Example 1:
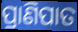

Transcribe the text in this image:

ପ୍ରାଣିପାତ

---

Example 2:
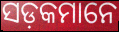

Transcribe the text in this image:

ସଡ଼କମାନେ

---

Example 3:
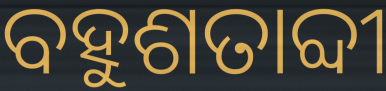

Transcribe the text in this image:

ବହୁଶତାବ୍ଦୀ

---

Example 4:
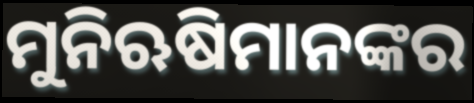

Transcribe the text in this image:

ମୁନିଋଷିମାନଙ୍କର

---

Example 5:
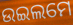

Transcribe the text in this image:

ଉଇଲମେ